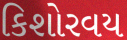
કિશોરવય